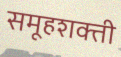
समूहशक्ती